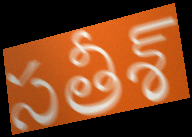
సతీశ్